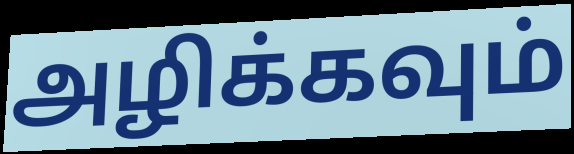
அழிக்கவும்